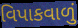
વિપાકવાળું